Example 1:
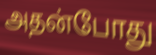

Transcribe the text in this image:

அதன்போது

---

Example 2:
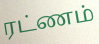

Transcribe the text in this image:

ரட்ணம்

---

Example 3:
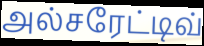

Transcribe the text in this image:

அல்சரேட்டிவ்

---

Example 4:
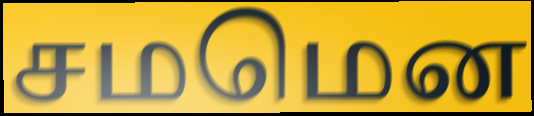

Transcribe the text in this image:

சமமென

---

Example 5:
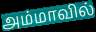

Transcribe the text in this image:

அம்மாவில்